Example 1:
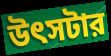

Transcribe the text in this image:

উৎসটার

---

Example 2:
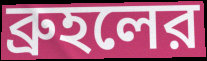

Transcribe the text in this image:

ব্রুহলের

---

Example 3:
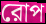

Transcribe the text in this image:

রোপ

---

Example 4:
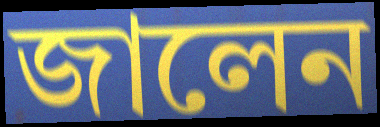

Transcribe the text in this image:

জালেন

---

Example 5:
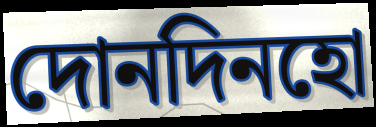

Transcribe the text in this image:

দোনদিনহো